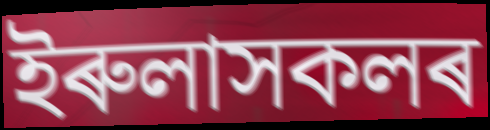
ইৰুলাসকলৰ